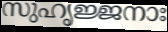
സുഹൃജ്ജനാഃ